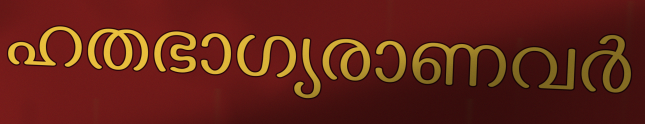
ഹതഭാഗ്യരാണവർ